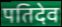
पतिदेव